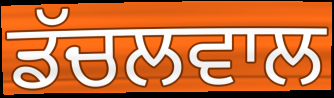
ਡੱਚਲਵਾਲ